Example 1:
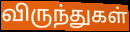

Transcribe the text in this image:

விருந்துகள்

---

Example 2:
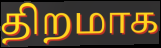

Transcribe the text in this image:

திறமாக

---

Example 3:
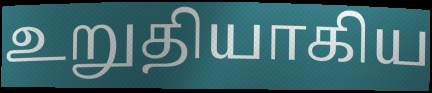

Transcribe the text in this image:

உறுதியாகிய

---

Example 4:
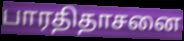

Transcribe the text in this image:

பாரதிதாசனை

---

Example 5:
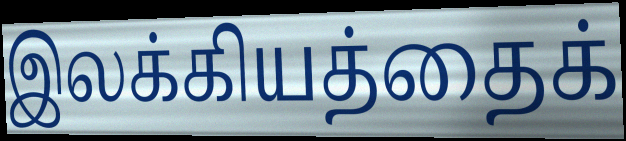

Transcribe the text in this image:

இலக்கியத்தைக்